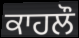
ਕਾਹਲੌ